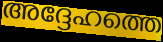
അദ്ദേഹത്തെ